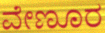
ವೇಣೂರ